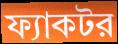
ফ্যাকটর